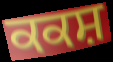
ਕਕਸ਼